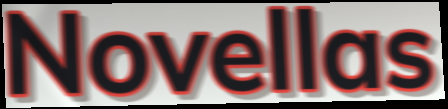
Novellas